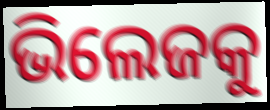
ଭିଲେଜକୁ